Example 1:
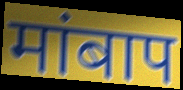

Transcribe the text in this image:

मांबाप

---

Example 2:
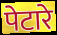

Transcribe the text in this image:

पेटारे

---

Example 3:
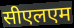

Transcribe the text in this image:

सीएलएम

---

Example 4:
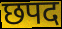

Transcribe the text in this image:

छपद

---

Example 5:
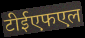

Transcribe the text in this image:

टीईएफएल